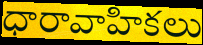
ధారావాహికలు